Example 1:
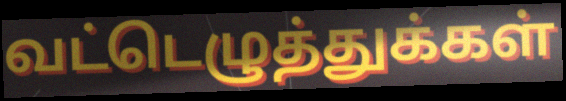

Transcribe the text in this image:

வட்டெழுத்துக்கள்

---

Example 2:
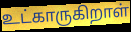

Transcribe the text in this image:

உட்காருகிறாள்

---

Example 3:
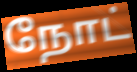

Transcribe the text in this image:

நோட்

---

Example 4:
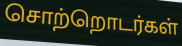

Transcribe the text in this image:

சொற்றொடர்கள்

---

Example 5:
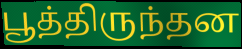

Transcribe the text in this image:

பூத்திருந்தன